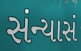
સંન્યાસં